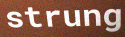
strung